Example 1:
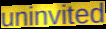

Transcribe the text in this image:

uninvited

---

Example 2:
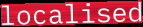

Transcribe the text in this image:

localised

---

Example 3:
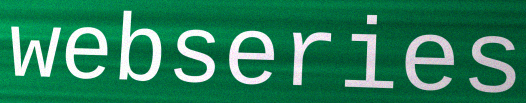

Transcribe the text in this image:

webseries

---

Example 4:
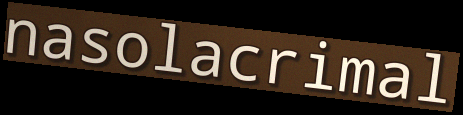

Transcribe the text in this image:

nasolacrimal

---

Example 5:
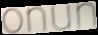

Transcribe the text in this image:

onun